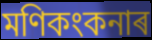
মণিকংকনাৰ